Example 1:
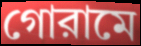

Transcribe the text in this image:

গোরামে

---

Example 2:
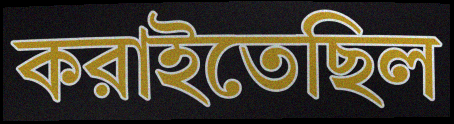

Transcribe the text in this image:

করাইতেছিল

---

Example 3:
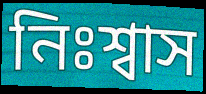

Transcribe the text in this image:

নিঃশ্বাস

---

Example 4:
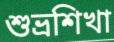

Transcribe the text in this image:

শুভ্রশিখা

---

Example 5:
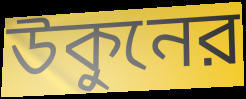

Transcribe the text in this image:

উকুনের